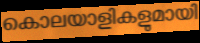
കൊലയാളികളുമായി